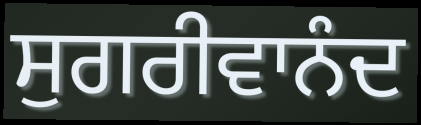
ਸੁਗਰੀਵਾਨੰਦ